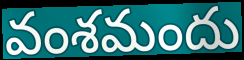
వంశమందు